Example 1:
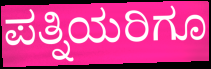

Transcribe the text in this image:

ಪತ್ನಿಯರಿಗೂ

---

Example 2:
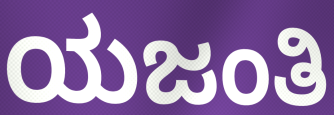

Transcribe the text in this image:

ಯಜಂತಿ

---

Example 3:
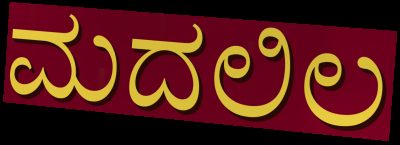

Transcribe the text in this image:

ಮದಲಿಲ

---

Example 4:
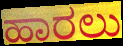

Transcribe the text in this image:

ಹಾರಲು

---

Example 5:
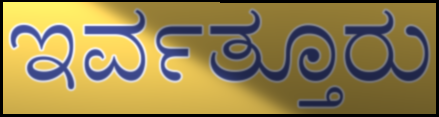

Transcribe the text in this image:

ಇರ್ವತ್ತೂರು